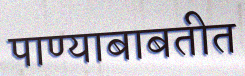
पाण्याबाबतीत